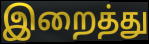
இறைத்து